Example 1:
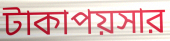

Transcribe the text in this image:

টাকাপয়সার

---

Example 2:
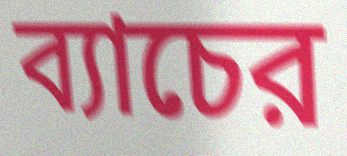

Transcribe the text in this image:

ব্যাচের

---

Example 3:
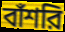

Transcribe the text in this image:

বাঁশরি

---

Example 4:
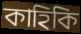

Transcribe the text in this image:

কাহিকি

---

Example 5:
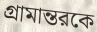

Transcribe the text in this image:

গ্রামান্তরকে